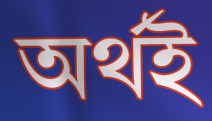
অর্থই